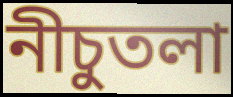
নীচুতলা